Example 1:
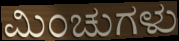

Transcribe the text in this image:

ಮಿಂಚುಗಳು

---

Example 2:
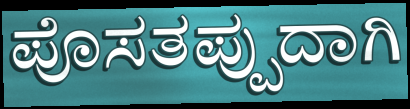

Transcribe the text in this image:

ಪೊಸತಪ್ಪುದಾಗಿ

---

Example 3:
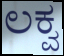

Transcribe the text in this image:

ಲಕ್ವ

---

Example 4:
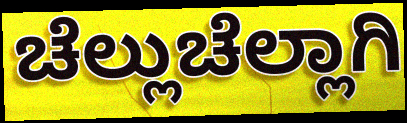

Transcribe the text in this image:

ಚೆಲ್ಲುಚೆಲ್ಲಾಗಿ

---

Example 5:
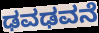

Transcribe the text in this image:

ಢವಢವನೆ